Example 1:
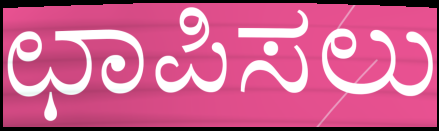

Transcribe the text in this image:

ಛಾಪಿಸಲು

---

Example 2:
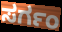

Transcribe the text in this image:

ಸರ್ಗಂ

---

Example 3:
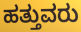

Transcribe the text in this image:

ಹತ್ತುವರು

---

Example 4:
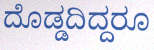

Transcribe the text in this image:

ದೊಡ್ಡದಿದ್ದರೂ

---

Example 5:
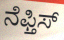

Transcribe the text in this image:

ನೆಫ್ತಿಸ್